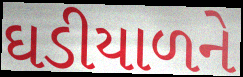
ઘડીયાળને